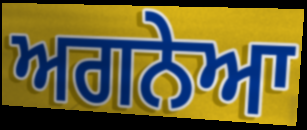
ਅਗਨੇਆ